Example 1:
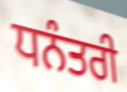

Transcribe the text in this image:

ਧਨੰਤਰੀ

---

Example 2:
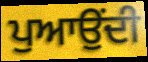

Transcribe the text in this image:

ਪੁਆਉਂਦੀ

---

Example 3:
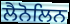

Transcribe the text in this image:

ਲੈਨੋਲਿਨ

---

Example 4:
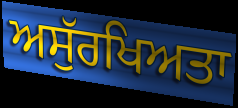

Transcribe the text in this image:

ਅਸੁੱਰਖਿਅਤਾ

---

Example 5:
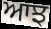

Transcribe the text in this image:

ਆਝ